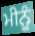
ਮੀਨੂੰ